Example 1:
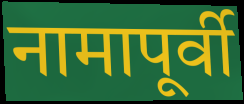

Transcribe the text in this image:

नामापूर्वी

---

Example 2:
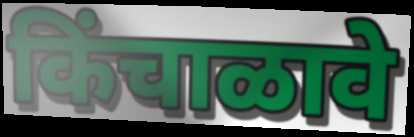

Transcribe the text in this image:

किंचाळावे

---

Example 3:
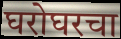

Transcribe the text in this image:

घरोघरचा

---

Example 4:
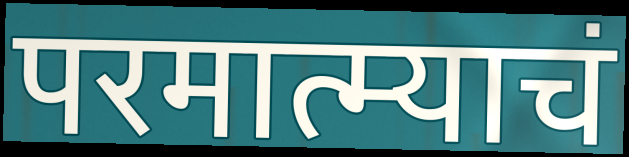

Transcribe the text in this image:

परमात्म्याचं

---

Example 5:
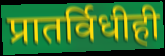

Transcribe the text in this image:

प्रातर्विधीही